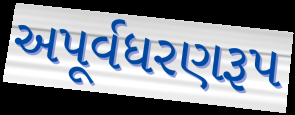
અપૂર્વધરણરૂપ